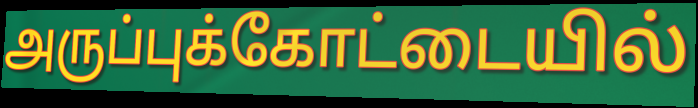
அருப்புக்கோட்டையில்